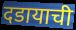
दडायाची